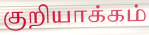
குறியாக்கம்